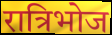
रात्रिभोज